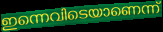
ഇന്നെവിടെയാണെന്ന്